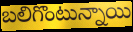
బలిగొంటున్నాయి